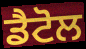
ਡੈਟੋਲ